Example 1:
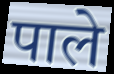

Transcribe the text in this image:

पाले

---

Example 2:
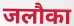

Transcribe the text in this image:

जलौका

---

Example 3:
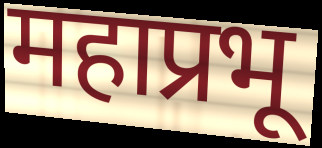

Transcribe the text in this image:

महाप्रभू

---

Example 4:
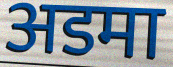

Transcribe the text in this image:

अडमा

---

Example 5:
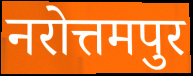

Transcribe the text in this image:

नरोत्तमपुर